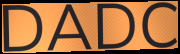
DADC